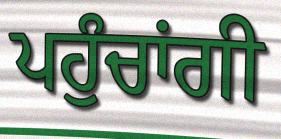
ਪਹੁੰਚਾਂਗੀ